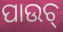
ପାଉଚ୍